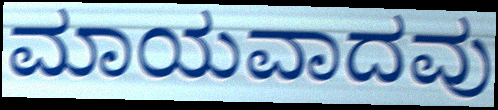
ಮಾಯವಾದವು